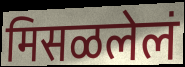
मिसळलेलं